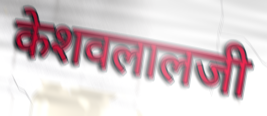
केशवलालजी